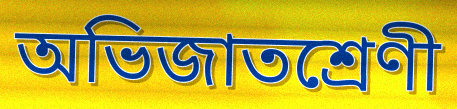
অভিজাতশ্রেণী